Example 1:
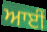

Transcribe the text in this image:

ਆਈਂ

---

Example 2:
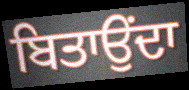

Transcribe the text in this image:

ਬਿਤਾਉਂਦਾ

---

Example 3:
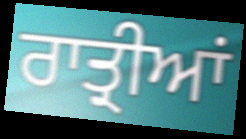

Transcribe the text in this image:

ਰਾਤ੍ਰੀਆਂ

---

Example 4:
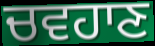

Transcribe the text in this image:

ਚਵਹਾਣ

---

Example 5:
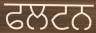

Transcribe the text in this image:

ਫਲਟਨ